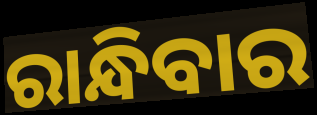
ରାନ୍ଧିବାର